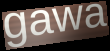
gawa